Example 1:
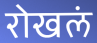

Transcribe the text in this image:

रोखलं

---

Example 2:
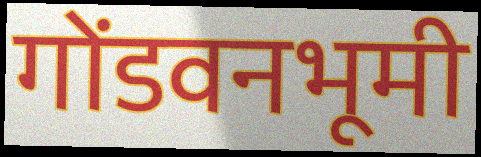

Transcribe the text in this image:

गोंडवनभूमी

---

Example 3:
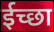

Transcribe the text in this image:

ईच्छा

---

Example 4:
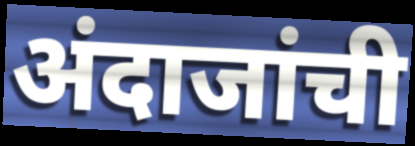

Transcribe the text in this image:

अंदाजांची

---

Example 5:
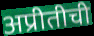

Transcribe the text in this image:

अप्रीतीची